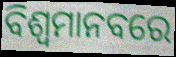
ବିଶ୍ୱମାନବରେ